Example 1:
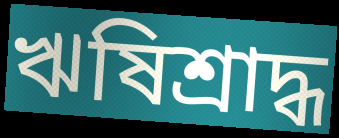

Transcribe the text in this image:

ঋষিশ্রাদ্ধ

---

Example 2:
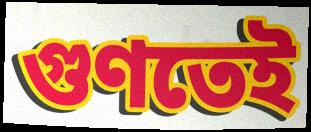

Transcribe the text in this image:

গুণতেই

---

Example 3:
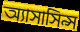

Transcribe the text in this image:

অ্যাসাসিন্স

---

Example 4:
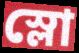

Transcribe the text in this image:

স্লো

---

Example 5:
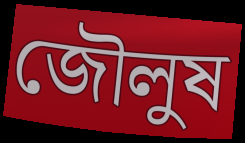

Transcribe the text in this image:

জৌলুষ